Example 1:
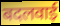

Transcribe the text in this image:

बदलवाई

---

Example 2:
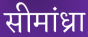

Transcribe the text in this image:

सीमांध्रा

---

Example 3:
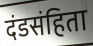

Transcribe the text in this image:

दंडसंहिता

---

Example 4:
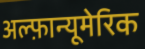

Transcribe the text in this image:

अल्फ़ान्यूमेरिक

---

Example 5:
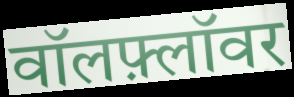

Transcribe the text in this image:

वॉलफ़्लॉवर